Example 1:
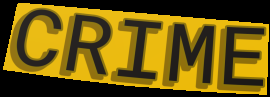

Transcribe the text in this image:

CRIME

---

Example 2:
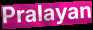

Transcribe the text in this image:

Pralayan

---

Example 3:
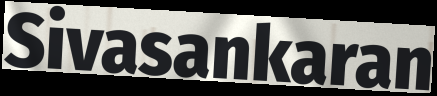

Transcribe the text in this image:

Sivasankaran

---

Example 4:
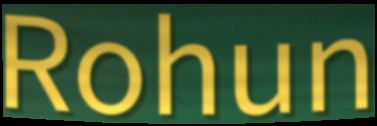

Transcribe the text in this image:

Rohun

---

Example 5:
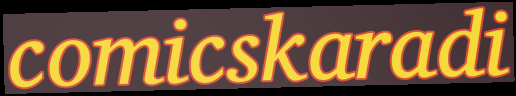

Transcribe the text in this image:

comicskaradi